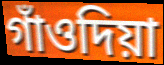
গাঁওদিয়া